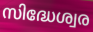
സിദ്ധേശ്വര